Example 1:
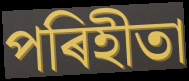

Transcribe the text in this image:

পৰিহীতা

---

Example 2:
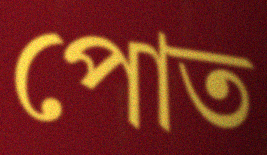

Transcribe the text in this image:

পোত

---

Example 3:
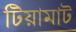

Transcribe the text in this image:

টিয়ামাট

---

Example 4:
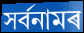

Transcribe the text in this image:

সৰ্বনামৰ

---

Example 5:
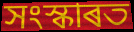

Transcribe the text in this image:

সংস্কাৰত